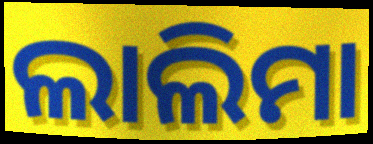
ଲାଲିମା